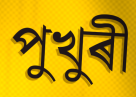
পুখুৰী